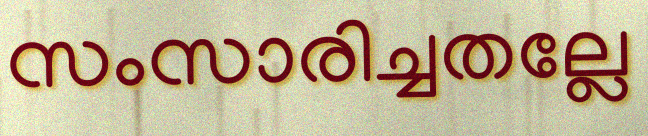
സംസാരിച്ചതല്ലേ